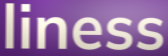
liness